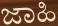
ಜಾಹಿ